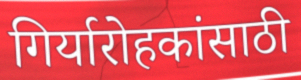
गिर्यारोहकांसाठी